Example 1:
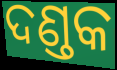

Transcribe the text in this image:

ଦଣ୍ଡକ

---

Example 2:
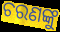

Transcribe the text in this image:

ଚରଣଙ୍କୁ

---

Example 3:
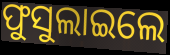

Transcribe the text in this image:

ଫୁସୁଲାଇଲେ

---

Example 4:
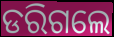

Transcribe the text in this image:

ଡରିଗଲେ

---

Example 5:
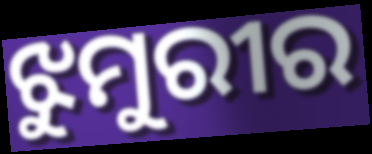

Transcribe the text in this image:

ଝୁମୁରୀର